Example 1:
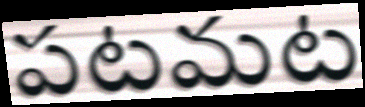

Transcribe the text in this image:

పటమట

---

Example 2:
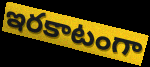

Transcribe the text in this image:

ఇరకాటంగా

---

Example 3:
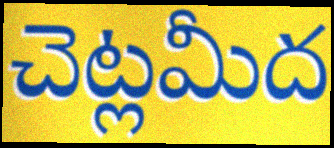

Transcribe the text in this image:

చెట్లమీద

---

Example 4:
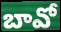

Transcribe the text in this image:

బావో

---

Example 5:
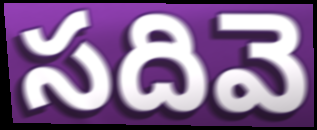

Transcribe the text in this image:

సదివె